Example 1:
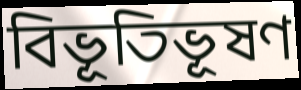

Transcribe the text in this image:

বিভূতিভূষণ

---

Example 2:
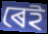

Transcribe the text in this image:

ৰেই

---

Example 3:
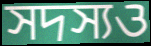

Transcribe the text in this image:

সদস্যও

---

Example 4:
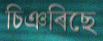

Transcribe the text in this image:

চিঞৰিছে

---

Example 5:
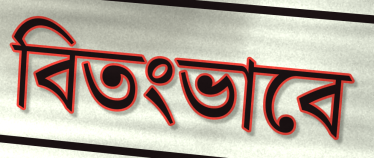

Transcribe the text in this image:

বিতংভাবে